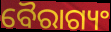
ବୈରାଗ୍ୟଂ